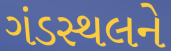
ગંડસ્થલને